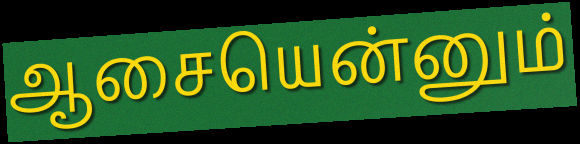
ஆசையென்னும்